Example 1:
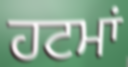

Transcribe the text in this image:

ਹਟਮਾਂ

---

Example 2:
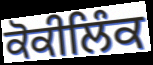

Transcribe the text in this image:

ਕੋਕੀਲਿੰਕ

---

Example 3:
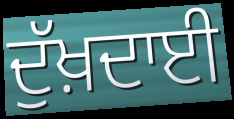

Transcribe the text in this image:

ਦੁੱਖ਼ਦਾਈ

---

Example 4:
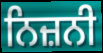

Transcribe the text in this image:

ਨਿਜ਼ਨੀ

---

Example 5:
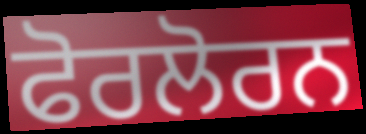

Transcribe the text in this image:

ਫੋਰਲੋਰਨ